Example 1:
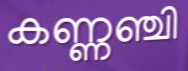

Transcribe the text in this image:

കണ്ണഞ്ചി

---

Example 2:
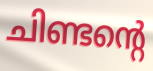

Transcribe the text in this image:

ചിണ്ടന്റെ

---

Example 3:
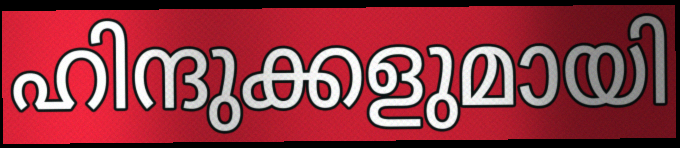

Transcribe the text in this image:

ഹിന്ദുക്കളുമായി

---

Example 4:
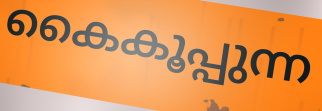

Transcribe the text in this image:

കൈകൂപ്പുന്ന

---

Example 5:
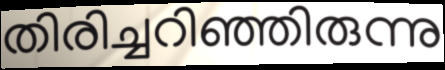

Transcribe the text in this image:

തിരിച്ചറിഞ്ഞിരുന്നു